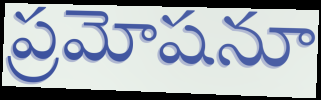
ప్రమోషనూ